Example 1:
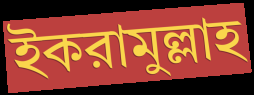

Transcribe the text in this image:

ইকরামুল্লাহ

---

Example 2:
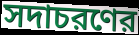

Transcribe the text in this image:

সদাচরণের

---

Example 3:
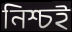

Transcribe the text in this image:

নিশ্চই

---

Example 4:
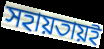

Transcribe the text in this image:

সহায়তায়ই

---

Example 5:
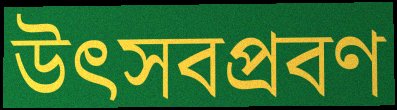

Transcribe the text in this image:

উৎসবপ্রবণ